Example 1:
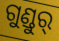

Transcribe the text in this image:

ଗୁଣ୍ଡୁର୍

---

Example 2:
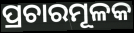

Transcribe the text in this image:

ପ୍ରଚାରମୂଳକ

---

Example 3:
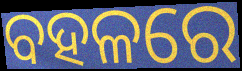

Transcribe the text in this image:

ବହଳରେ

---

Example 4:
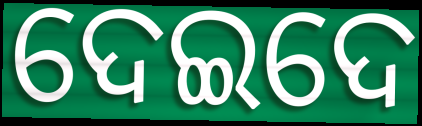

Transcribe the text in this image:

ଦେଇଦେ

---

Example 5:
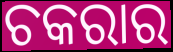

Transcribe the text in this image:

ଚକରାର